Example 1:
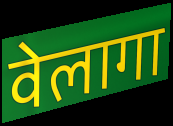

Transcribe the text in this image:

वेलागा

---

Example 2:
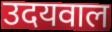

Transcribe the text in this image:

उदयवाल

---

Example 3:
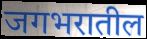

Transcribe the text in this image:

जगभरातील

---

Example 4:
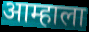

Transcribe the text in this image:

आम्हाला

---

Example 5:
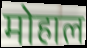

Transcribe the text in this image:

मोहाल